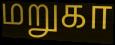
மறுகா